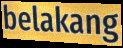
belakang